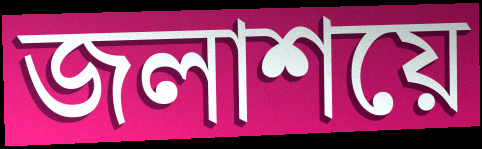
জলাশয়ে